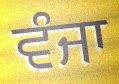
ਵੰਜਾ